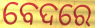
ବେଦରେ